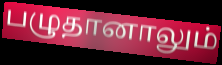
பழுதானாலும்